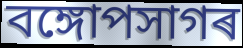
বঙ্গোপসাগৰ